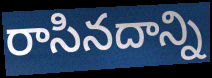
రాసినదాన్ని